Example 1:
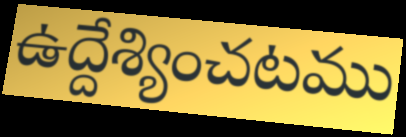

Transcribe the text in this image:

ఉద్దేశ్యించటము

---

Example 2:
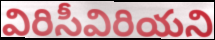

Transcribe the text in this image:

విరిసీవిరియని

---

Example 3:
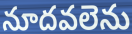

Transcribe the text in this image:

నూదవలెను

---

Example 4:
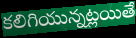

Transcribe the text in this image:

కలిగియున్నట్లయితే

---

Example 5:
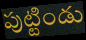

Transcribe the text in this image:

పుట్టిండు